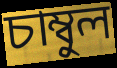
চাম্বুল